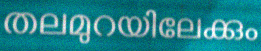
തലമുറയിലേക്കും